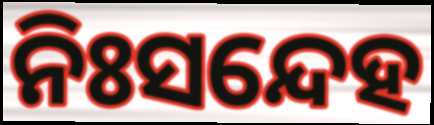
ନିଃସନ୍ଦେହ